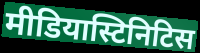
मीडियास्टिनिटिस